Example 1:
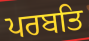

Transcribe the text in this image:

ਪਰਬਤਿ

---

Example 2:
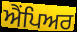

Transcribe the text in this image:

ਐਂਪਿਅਰ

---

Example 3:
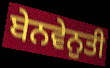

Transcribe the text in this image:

ਬੇਨਵੇਨੁਤੀ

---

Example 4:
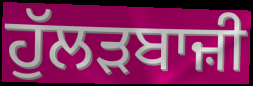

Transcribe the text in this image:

ਹੁੱਲੜਬਾਜ਼ੀ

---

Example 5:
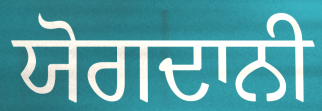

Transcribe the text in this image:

ਯੋਗਦਾਨੀ